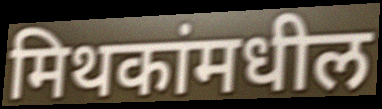
मिथकांमधील